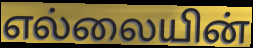
எல்லையின்